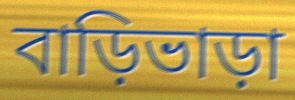
বাড়িভাড়া